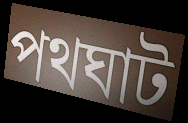
পথঘাট